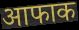
आफाक